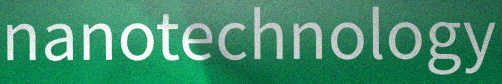
nanotechnology